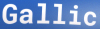
Gallic